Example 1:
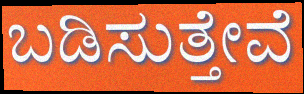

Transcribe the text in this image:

ಬಡಿಸುತ್ತೇವೆ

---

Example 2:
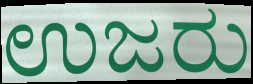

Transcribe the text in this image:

ಉಜರು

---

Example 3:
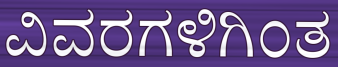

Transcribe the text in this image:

ವಿವರಗಳಿಗಿಂತ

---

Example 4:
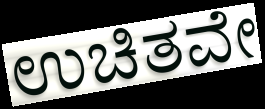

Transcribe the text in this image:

ಉಚಿತವೇ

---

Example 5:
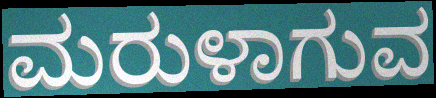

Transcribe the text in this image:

ಮರುಳಾಗುವ